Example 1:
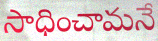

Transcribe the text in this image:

సాధించామనే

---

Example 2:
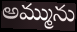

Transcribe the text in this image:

అమ్మును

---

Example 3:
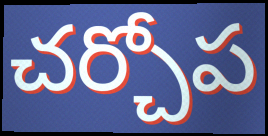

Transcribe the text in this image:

చర్చోప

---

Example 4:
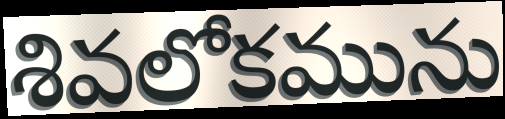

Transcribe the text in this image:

శివలోకమును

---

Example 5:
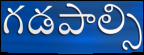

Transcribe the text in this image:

గడపాల్సి